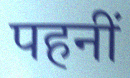
पहनीं